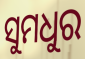
ସୁମଧୁର